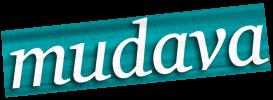
mudava